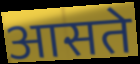
आसते